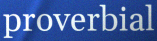
proverbial